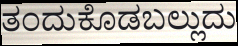
ತಂದುಕೊಡಬಲ್ಲುದು